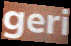
geri